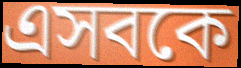
এসবকে